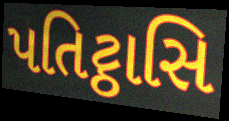
પતિટ્ઠાસિ